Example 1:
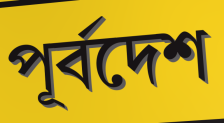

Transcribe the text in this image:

পূর্বদেশ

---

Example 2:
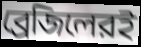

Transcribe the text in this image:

ব্রেজিলেরই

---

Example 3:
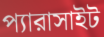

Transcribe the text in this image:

প্যারাসাইট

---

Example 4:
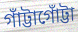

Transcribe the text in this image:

গাঁট্টাগোঁট্টা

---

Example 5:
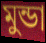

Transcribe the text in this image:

মুন্ডা